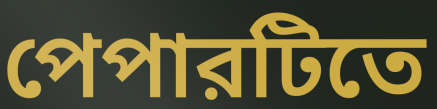
পেপারটিতে